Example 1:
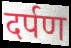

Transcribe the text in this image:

दर्पण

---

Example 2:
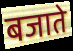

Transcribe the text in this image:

बजाते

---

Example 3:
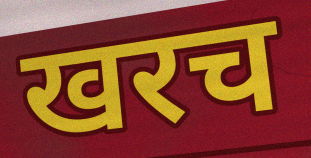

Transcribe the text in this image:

खरच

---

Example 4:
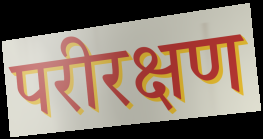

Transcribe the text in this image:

परीरक्षण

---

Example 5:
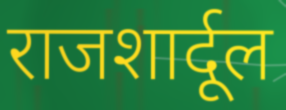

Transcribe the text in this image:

राजशार्दूल